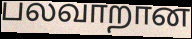
பலவாறான